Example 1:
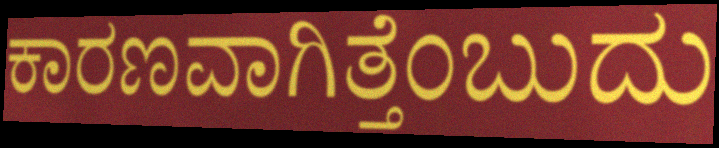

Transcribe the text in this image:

ಕಾರಣವಾಗಿತ್ತೆಂಬುದು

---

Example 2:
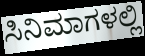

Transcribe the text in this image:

ಸಿನಿಮಾಗಳಲ್ಲಿ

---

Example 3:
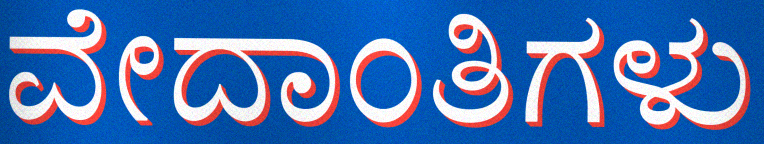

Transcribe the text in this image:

ವೇದಾಂತಿಗಳು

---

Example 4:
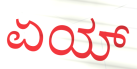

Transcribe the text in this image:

ಏಯ್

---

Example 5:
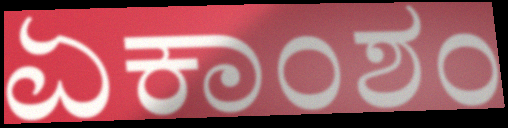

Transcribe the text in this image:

ಏಕಾಂಶಂ